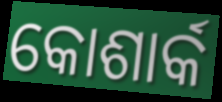
କୋଶାର୍କ